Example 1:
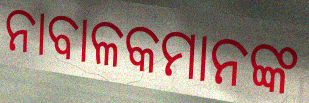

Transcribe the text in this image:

ନାବାଳକମାନଙ୍କ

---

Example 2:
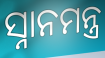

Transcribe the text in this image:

ସ୍ନାନମନ୍ତ୍ର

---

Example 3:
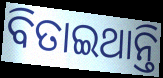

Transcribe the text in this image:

ବିତାଇଥାନ୍ତି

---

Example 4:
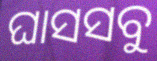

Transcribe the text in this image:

ଘାସସବୁ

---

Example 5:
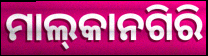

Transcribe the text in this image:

ମାଲ୍‌କାନଗିରି